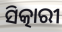
ସିତ୍କାରୀ